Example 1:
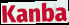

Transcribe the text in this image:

Kanba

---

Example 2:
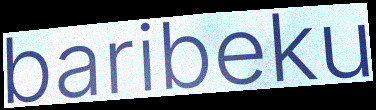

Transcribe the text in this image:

baribeku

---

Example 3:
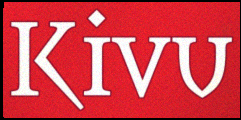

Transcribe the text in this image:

Kivu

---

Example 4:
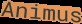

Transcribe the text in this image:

Animus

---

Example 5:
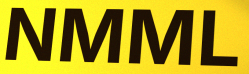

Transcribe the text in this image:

NMML